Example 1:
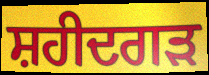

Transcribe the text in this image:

ਸ਼ਹੀਦਗੜ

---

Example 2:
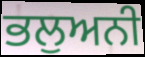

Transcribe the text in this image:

ਭਲੁਅਨੀ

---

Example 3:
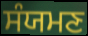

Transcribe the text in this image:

ਸੰਯਮਣ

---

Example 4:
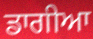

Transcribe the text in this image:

ਡਾਗੀਆ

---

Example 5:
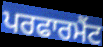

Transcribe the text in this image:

ਪਰਫਾਰਮੈਂਟ